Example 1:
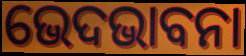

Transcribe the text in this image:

ଭେଦଭାବନା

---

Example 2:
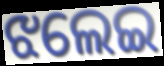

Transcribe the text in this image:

ଝଲେଇ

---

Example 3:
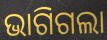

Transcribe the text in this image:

ଭାଗିଗଲା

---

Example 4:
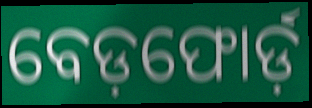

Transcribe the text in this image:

ବେଡ଼ଫୋର୍ଡ଼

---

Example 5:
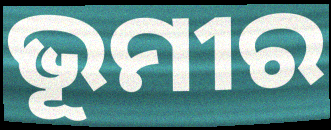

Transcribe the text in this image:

ଭୂମୀର